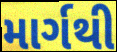
માર્ગથી